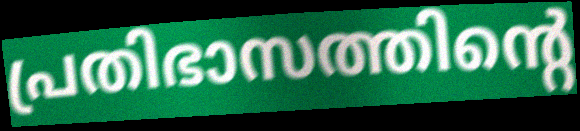
പ്രതിഭാസത്തിന്റെ